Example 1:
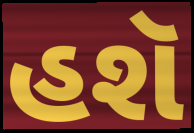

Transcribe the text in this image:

હશૅ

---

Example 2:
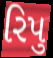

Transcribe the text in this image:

રિપુ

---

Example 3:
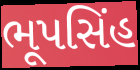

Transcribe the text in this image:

ભૂપસિંહ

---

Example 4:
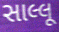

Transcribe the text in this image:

સાલ્લૂ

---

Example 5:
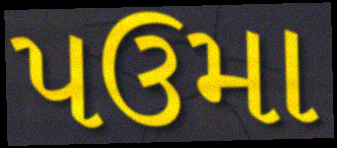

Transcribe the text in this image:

પઉમા